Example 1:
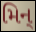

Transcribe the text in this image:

મિન્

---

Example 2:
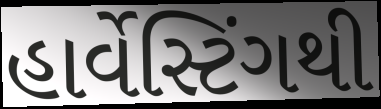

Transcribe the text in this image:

હાર્વેસ્ટિંગથી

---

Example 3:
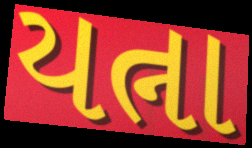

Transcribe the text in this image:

યત્ના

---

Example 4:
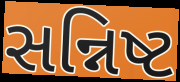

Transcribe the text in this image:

સન્નિષ્ટ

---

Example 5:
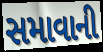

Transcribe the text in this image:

સમાવાની